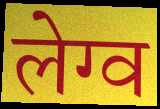
लेग्व